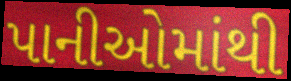
પાનીઓમાંથી